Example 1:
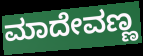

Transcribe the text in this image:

ಮಾದೇವಣ್ಣ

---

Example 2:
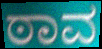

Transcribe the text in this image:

ಠಾವ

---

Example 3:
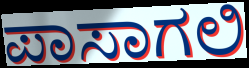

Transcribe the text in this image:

ಪಾಸಾಗಲಿ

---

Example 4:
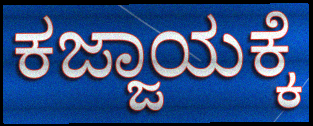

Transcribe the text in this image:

ಕಜ್ಜಾಯಕ್ಕೆ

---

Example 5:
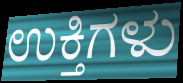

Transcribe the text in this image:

ಉಕ್ತಿಗಳು